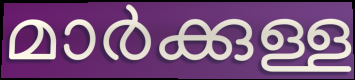
മാർക്കുള്ള